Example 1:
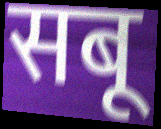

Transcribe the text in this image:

सबू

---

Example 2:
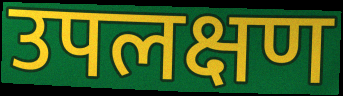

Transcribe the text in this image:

उपलक्षण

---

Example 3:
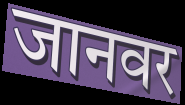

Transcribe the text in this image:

जानवर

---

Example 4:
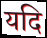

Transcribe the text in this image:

यदि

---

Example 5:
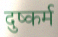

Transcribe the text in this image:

दुष्कर्म